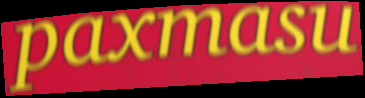
paxmasu